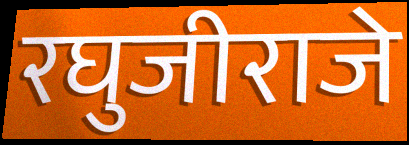
रघुजीराजे